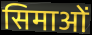
सिमाओं